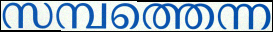
സമ്പത്തെന്ന